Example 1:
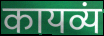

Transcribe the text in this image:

कायव्यं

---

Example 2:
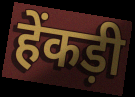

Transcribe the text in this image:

हेंकड़ी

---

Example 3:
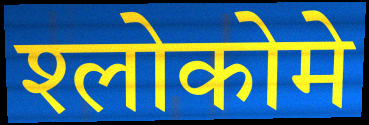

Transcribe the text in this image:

श्लोकोमे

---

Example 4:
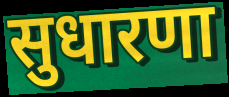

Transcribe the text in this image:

सुधारणा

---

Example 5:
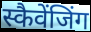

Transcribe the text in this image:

स्कैवेंजिंग